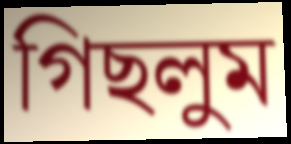
গিছলুম